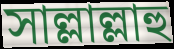
সাল্লাল্লাহু